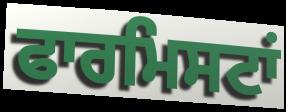
ਫਾਰਮਿਸਟਾਂ